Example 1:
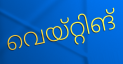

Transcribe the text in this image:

വെയ്റ്റിങ്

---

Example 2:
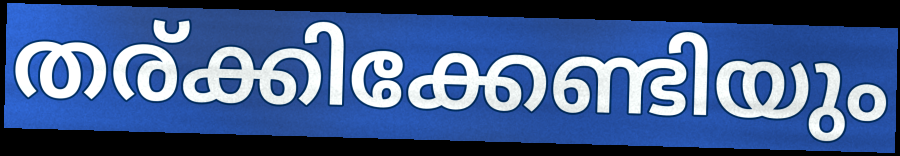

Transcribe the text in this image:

തര്ക്കിക്കേണ്ടിയും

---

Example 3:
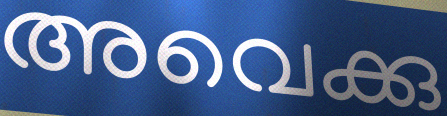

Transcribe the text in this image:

അവെക്കു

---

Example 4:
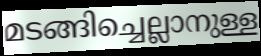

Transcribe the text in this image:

മടങ്ങിച്ചെല്ലാനുള്ള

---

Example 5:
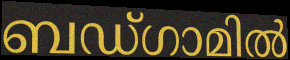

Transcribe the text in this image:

ബഡ്ഗാമിൽ